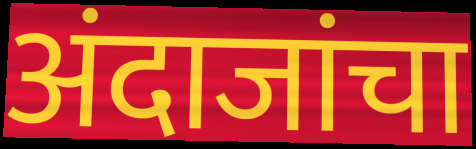
अंदाजांचा